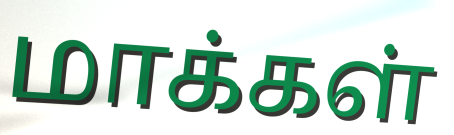
மாக்கள்